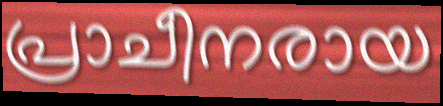
പ്രാചീനരായ